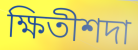
ক্ষিতীশদা